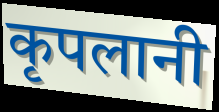
कृपलानी